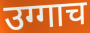
उग्गाच